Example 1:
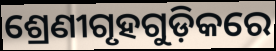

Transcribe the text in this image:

ଶ୍ରେଣୀଗୃହଗୁଡ଼ିକରେ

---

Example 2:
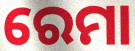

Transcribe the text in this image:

ରେମା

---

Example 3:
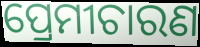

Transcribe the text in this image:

ପ୍ରେମୀଚାରଣ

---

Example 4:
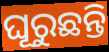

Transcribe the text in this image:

ଘୂରୁଛନ୍ତି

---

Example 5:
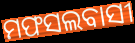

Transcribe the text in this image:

ମଫସଲବାସୀ